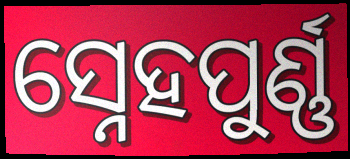
ସ୍ନେହପୁର୍ଣ୍ଣ